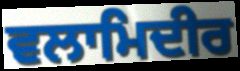
ਵਲਾਮਿਦੀਰ